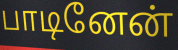
பாடினேன்